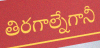
తిరగాల్నేగానీ